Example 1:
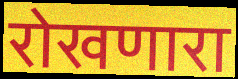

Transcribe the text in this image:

रोखणारा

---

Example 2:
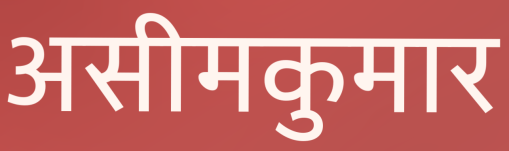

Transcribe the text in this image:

असीमकुमार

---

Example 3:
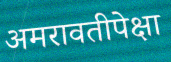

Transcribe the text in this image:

अमरावतीपेक्षा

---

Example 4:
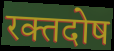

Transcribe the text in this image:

रक्‍तदोष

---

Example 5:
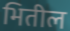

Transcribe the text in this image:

भितील